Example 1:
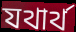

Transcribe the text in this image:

যথার্থ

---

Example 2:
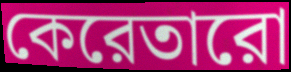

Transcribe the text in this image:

কেরেতারো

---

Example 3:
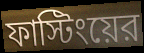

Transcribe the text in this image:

ফাস্টিংয়ের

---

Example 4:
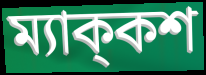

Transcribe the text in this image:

ম্যাক্‌কশ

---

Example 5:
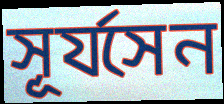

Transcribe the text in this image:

সূর্যসেন